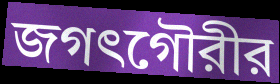
জগৎগৌরীর